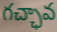
గచ్ఛావ